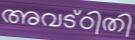
അവട്ഠിതി